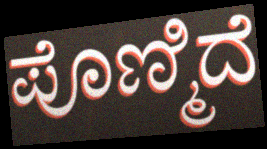
ಪೊಣ್ಮಿದೆ